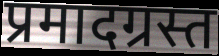
प्रमादग्रस्त